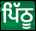
ਪਿੱਠੂ